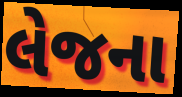
લેજના